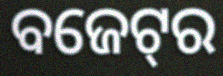
ବଜେଟ୍‌ର